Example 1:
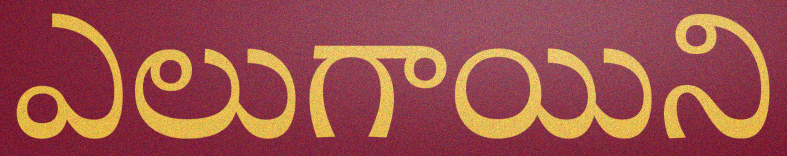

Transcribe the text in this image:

ఎలుగాయిని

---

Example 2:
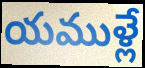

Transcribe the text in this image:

యముళ్లే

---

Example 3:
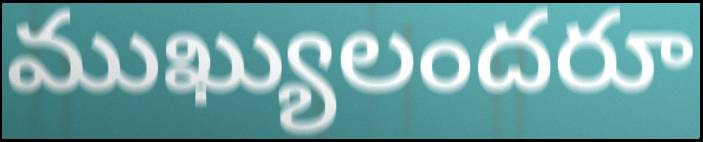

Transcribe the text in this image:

ముఖ్యులందరూ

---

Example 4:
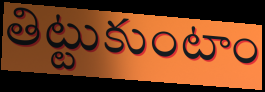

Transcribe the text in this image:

తిట్టుకుంటాం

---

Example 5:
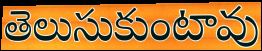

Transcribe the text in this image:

తెలుసుకుంటావు